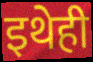
इथेही